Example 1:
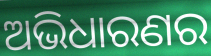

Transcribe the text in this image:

ଅଭିଧାରଣର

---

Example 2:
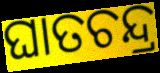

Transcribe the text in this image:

ଘାତଚନ୍ଦ୍ର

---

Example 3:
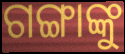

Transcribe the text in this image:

ଗଙ୍ଗାଙ୍କୁ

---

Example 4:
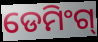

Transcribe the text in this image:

ଡେମିଂଗ୍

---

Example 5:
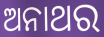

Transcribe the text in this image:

ଅନାଥର